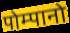
पोम्पानो